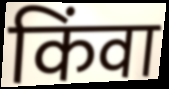
किंवा